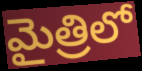
మైత్రిలో